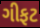
ગીફટ